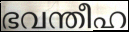
ഭവന്തീഹ